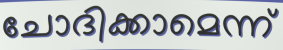
ചോദിക്കാമെന്ന്